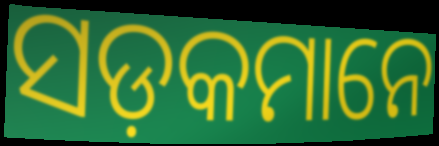
ସଡ଼କମାନେ